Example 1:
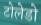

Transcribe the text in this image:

टोलेडो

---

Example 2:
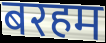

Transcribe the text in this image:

बरहम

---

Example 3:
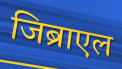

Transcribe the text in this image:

जिब्राएल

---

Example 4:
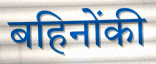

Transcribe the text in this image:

बहिनोंकी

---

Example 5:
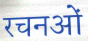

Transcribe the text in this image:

रचनओं